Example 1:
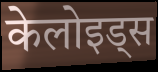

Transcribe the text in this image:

केलोइड्स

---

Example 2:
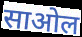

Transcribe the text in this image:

साओल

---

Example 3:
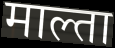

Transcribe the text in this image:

माल्ता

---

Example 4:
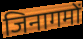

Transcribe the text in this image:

जिनागमों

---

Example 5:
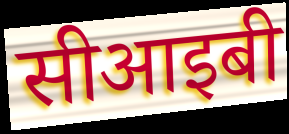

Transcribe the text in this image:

सीआइबी